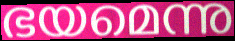
ഭയമെന്നു